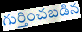
గుర్తించబడిన